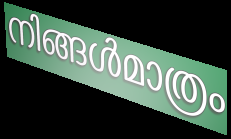
നിങ്ങൾമാത്രം